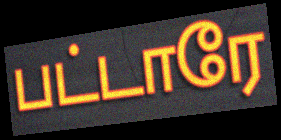
பட்டாரே